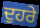
ਦੁਹਰੇ